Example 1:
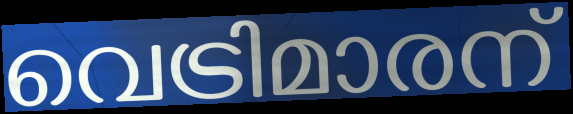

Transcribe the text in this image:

വെട്രിമാരന്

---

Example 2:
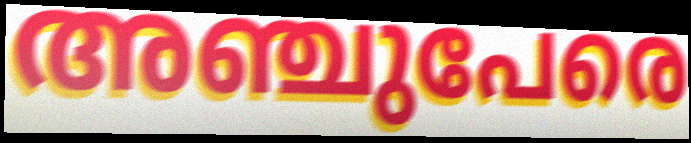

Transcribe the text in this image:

അഞ്ചുപേരെ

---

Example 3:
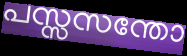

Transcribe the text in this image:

പസ്സസന്തോ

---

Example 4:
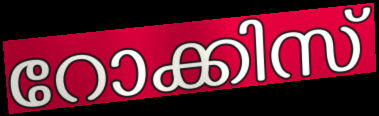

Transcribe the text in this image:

റോക്കിസ്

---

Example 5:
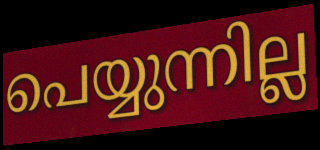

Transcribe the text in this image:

പെയ്യുന്നില്ല